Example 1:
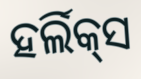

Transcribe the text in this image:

ହର୍ଲିକ୍‌ସ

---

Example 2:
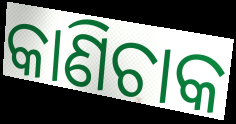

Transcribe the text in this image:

କାଣିଚାକ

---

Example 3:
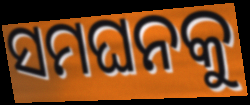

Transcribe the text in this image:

ସମଘନକୁ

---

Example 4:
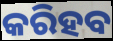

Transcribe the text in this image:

କରିହବ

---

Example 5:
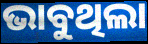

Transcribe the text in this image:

ଭାବୁଥିଲା